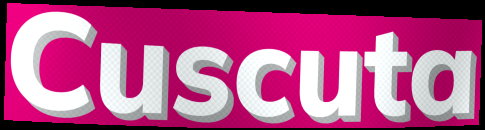
Cuscuta